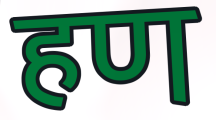
हण